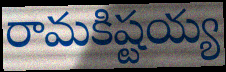
రామకిష్టయ్య